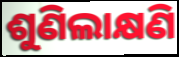
ଶୁଣିଲାକ୍ଷଣି